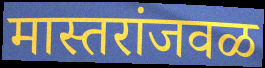
मास्तरांजवळ